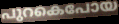
പുറകെപോയ